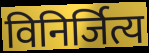
विनिर्जित्य